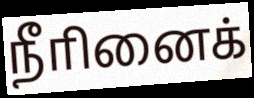
நீரினைக்